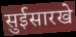
सुईसारखे